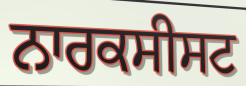
ਨਾਰਕਸੀਸਟ